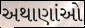
અથાણાંઓ